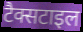
टैक्सटाइल